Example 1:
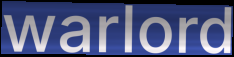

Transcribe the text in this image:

warlord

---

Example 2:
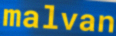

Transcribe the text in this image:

malvan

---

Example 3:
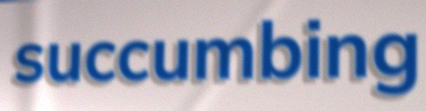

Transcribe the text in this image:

succumbing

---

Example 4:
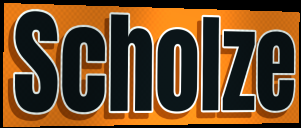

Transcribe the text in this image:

Scholze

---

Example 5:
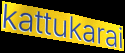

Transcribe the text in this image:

kattukarai